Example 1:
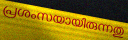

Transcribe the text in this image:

പ്രശംസയായിരുന്നതു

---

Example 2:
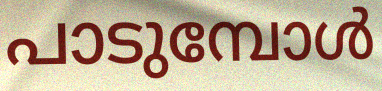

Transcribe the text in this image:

പാടുമ്പോൾ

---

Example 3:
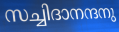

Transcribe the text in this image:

സച്ചിദാനന്ദനു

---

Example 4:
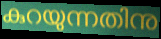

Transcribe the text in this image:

കുറയുന്നതിനു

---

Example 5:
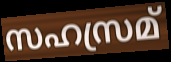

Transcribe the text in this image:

സഹസ്രമ്